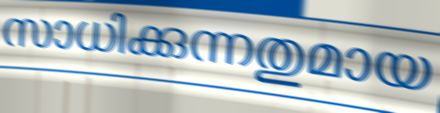
സാധിക്കുന്നതുമായ